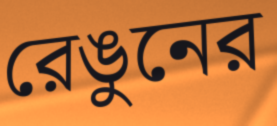
রেঙুনের